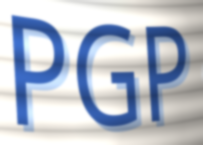
PGP